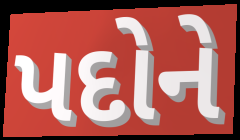
પદોને